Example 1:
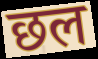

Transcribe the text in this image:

छल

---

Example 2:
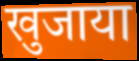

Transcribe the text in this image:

खुजाया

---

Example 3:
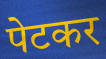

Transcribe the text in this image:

पेटकर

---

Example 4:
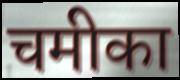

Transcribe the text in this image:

चमीका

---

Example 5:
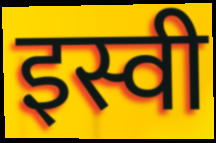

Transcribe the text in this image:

इस्वी